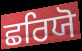
ਛਰਿਯੋ